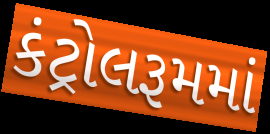
કંટ્રોલરૂમમાં